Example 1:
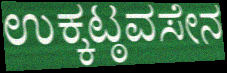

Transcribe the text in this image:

ಉಕ್ಕಟ್ಠವಸೇನ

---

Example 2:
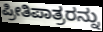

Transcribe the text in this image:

ಪ್ರೀತಿಪಾತ್ರರನ್ನು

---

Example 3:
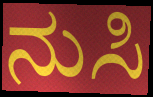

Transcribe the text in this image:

ನುಸಿ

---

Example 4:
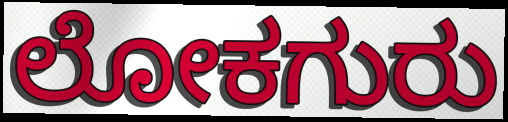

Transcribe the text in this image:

ಲೋಕಗುರು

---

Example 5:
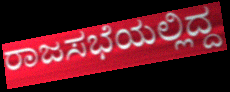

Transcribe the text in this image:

ರಾಜಸಭೆಯಲ್ಲಿದ್ದ